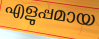
എളുപ്പമായ